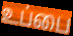
உப்பை